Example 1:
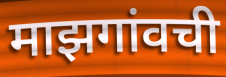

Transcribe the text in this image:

माझगांवची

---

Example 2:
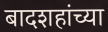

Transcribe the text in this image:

बादशहांच्या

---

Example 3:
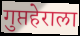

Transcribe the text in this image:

गुप्तहेराला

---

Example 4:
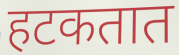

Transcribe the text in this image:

हटकतात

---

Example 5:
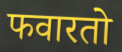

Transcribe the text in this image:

फवारतो